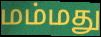
மம்மது